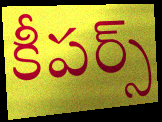
కీపర్స్